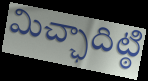
మిచ్ఛాదిట్ఠి